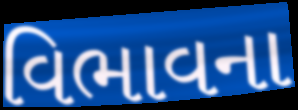
વિભાવના